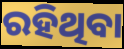
ରହିଥିବା